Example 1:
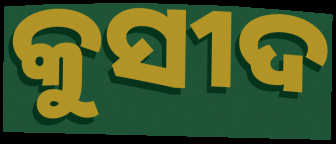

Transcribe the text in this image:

କୁସୀଦ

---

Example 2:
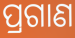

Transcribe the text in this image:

ପ୍ରଗାଣ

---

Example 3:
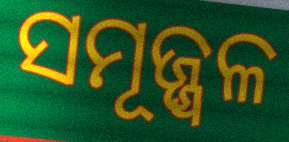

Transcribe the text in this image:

ସମୂଜ୍ଜ୍ୱଳ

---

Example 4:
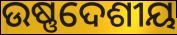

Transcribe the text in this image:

ଉଷ୍ଣଦେଶୀୟ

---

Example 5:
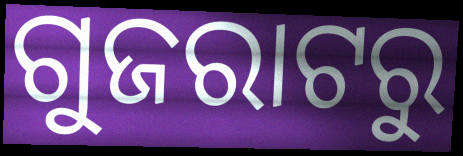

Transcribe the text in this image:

ଗୁଜରାଟରୁ